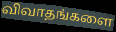
விவாதங்களை